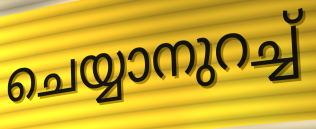
ചെയ്യാനുറച്ച്